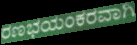
ರಣಭಯಂಕರವಾಗಿ